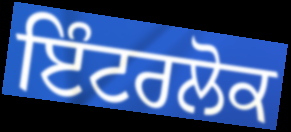
ਇੰਟਰਲੋਕ